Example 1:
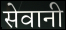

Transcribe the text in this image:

सेवानी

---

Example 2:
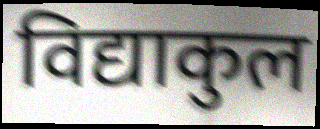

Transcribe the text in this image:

विद्याकुल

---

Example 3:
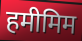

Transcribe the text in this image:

हमीमिम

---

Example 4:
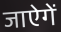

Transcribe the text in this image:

जाऐगें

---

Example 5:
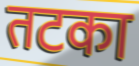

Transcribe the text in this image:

तटका